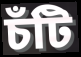
চঁটি